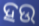
ହଉ